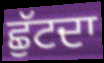
ਛੁੱਟਦਾ